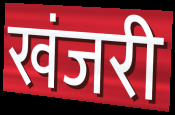
खंजरी